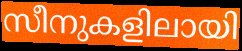
സീനുകളിലായി